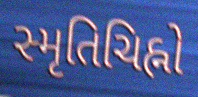
સ્મૃતિચિહ્નો